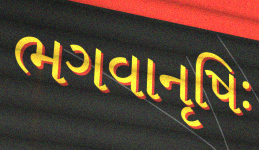
ભગવાનૃષિઃ